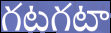
గటగటా